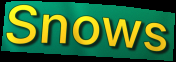
Snows